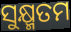
ସୁକ୍ଷ୍ମତମ